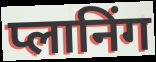
प्लानिंग